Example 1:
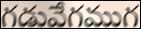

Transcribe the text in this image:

గడువేగముగ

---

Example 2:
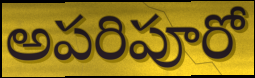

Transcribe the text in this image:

అపరిపూరో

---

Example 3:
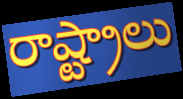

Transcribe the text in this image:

రాష్ట్రాలు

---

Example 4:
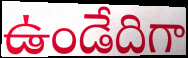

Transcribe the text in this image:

ఉండేదిగా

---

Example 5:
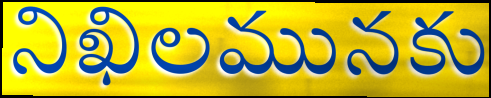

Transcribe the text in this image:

నిఖిలమునకు